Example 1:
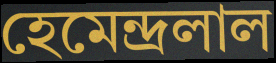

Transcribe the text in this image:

হেমেন্দ্রলাল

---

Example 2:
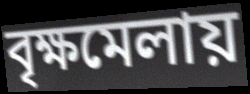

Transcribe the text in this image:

বৃক্ষমেলায়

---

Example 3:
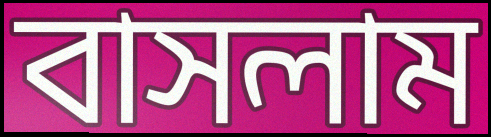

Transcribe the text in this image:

বাসলাম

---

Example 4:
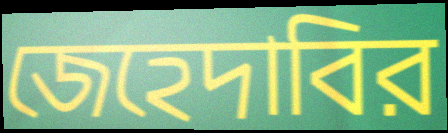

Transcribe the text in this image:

জেহেদাবির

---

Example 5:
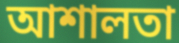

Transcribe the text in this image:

আশালতা